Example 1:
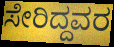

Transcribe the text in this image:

ಸೇರಿದ್ದವರ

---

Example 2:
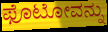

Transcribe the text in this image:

ಫೊಟೋವನ್ನು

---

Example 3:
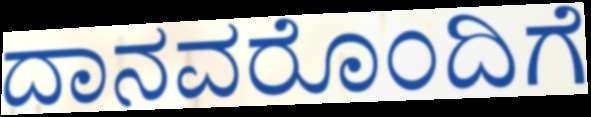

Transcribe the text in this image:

ದಾನವರೊಂದಿಗೆ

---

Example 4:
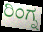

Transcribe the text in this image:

ರಿಂಗ್ನ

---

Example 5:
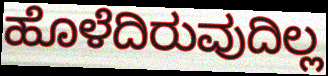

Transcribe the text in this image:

ಹೊಳೆದಿರುವುದಿಲ್ಲ